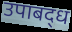
उपाबद्ध